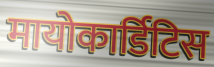
मायोकार्डिटिस